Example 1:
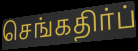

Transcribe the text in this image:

செங்கதிர்ப்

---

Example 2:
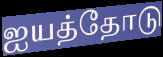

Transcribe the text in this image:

ஐயத்தோடு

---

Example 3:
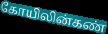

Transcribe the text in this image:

கோயிலின்கண்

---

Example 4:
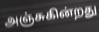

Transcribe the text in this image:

அஞ்சுகின்றது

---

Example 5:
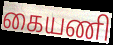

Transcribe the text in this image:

கையணி